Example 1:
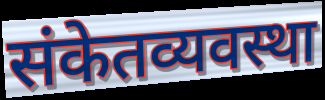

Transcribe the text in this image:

संकेतव्यवस्था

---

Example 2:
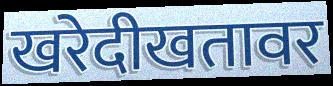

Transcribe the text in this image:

खरेदीखतावर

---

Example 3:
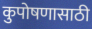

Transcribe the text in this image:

कुपोषणासाठी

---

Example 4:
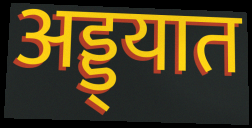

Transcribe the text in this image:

अड्ड्यात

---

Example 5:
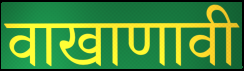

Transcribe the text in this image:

वाखाणावी